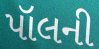
પૉલની